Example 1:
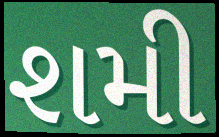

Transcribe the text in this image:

શમી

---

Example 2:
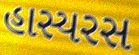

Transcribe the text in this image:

હાસ્યરસ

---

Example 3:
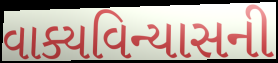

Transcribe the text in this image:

વાક્યવિન્યાસની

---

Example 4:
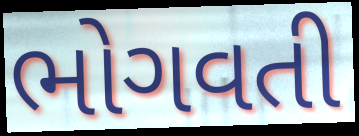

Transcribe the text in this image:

ભોગવતી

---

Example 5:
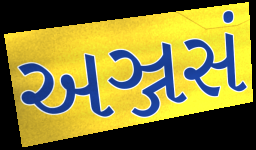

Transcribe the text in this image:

અઞ્જસં